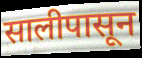
सालीपासून